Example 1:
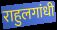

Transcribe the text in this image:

राहुलगांधी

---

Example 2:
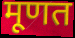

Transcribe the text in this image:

मूणत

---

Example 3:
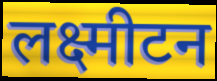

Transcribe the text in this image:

लक्ष्मीटन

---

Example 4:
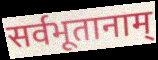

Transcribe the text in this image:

सर्वभूतानाम्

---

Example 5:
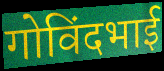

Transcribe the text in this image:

गोविंदभाई